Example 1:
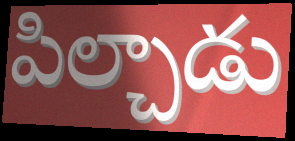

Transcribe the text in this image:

పిల్చాడు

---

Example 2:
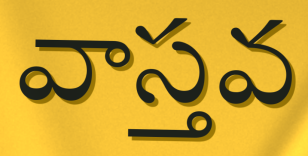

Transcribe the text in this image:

వాస్తవ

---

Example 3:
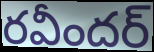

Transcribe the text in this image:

రవీందర్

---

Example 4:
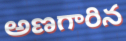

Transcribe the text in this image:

అణగారిన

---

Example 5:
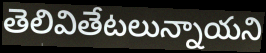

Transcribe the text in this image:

తెలివితేటలున్నాయని